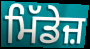
ਮਿੱਡੇਜ਼